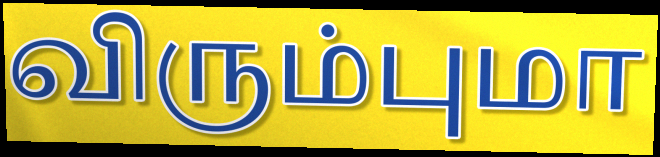
விரும்புமா